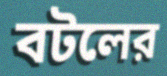
বটলের